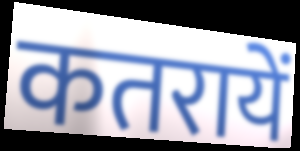
कतरायें